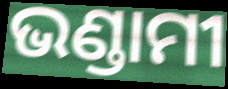
ଭଣ୍ଡାମୀ